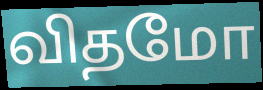
விதமோ